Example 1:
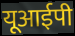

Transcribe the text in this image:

यूआईपी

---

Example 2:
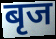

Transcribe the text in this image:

बृज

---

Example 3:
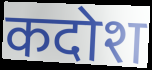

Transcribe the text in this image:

कदोश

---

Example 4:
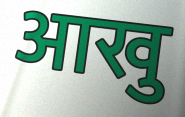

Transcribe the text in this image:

आखु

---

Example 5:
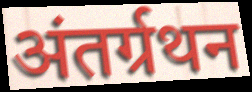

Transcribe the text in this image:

अंतर्ग्रथन